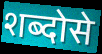
शब्दोसे